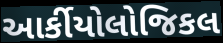
આર્કીયોલોજિકલ